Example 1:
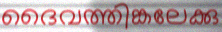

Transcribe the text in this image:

ദൈവത്തിങ്കലേക്കു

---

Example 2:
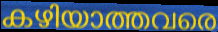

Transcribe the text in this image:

കഴിയാത്തവരെ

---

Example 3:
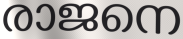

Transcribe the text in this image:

രാജനെ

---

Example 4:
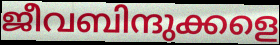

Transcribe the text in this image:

ജീവബിന്ദുക്കളെ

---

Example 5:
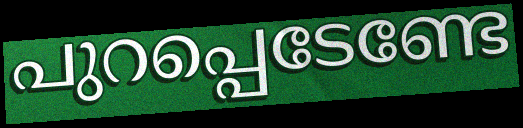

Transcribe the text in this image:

പുറപ്പെടേണ്ടേ